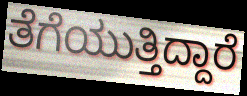
ತೆಗೆಯುತ್ತಿದ್ದಾರೆ